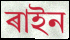
ৰাইন